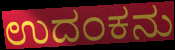
ಉದಂಕನು